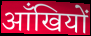
आँखियों